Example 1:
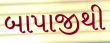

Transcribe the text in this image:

બાપાજીથી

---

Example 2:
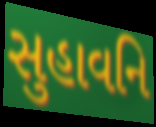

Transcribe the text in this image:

સુહાવનિ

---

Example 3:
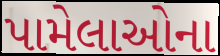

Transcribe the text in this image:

પામેલાઓના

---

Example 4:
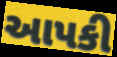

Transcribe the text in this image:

આપકી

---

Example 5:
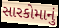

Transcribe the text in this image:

સારકોમાનું